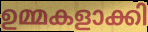
ഉമ്മകളാക്കി